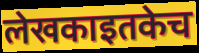
लेखकाइतकेच